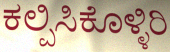
ಕಲ್ಪಿಸಿಕೊಳ್ಳಿರಿ